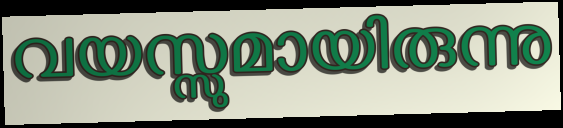
വയസ്സുമായിരുന്നു